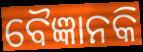
ବୈଜ୍ଞାନକି